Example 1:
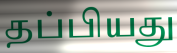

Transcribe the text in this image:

தப்பியது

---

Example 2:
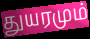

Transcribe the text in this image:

துயரமும்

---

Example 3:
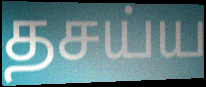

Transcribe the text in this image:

தசய்ய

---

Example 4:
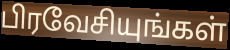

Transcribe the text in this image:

பிரவேசியுங்கள்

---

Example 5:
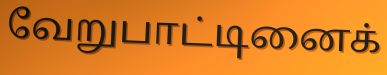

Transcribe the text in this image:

வேறுபாட்டினைக்